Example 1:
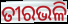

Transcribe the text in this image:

ତୀରଭଳି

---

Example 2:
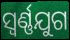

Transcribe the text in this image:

ସ୍ଵର୍ଣ୍ଣଯୁଗ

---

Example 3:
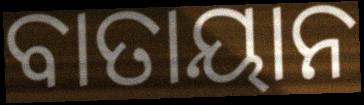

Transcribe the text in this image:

ବାତାୟାନ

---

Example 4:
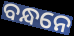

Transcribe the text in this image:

ବନ୍ଧନେ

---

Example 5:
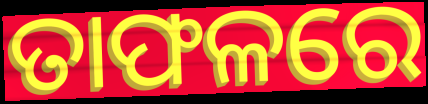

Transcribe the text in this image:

ତାଫଳରେ